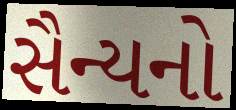
સૈન્યનો